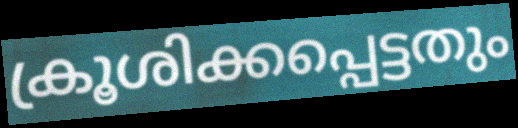
ക്രൂശിക്കപ്പെട്ടതും